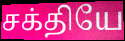
சக்தியே